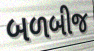
બળબીજ